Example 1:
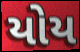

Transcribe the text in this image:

યોય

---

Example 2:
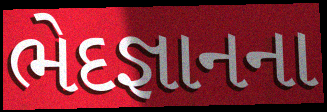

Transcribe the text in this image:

ભેદજ્ઞાનના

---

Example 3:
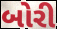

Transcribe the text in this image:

બોરી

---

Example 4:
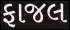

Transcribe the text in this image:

ફાજલ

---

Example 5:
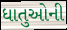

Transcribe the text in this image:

ધાતુઓની